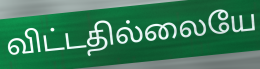
விட்டதில்லையே